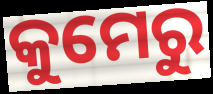
କୁମେରୁ